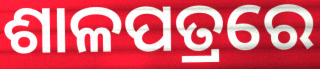
ଶାଳପତ୍ରରେ